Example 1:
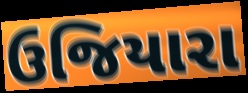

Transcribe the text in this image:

ઉજિયારા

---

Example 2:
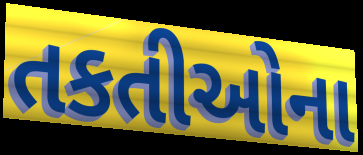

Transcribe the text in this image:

તકતીઓના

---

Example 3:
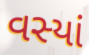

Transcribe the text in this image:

વસ્યાં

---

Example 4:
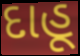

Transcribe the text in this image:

દાહૂ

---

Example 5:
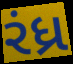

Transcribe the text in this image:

રંધ્ર